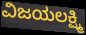
ವಿಜಯಲಕ್ಷ್ಮಿ